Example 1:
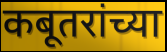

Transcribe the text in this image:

कबूतरांच्या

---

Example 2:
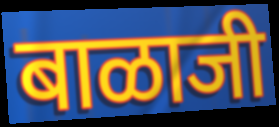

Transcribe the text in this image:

बाळाजी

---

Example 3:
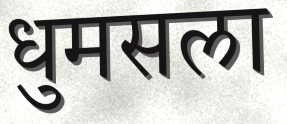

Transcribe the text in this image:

धुमसला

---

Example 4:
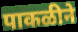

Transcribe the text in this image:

पाकळीने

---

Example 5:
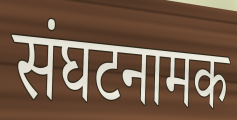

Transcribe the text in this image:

संघटनामक